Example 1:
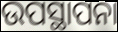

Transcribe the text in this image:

ଉପସ୍ଥାପନା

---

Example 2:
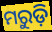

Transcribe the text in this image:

ମରୁଡ଼ି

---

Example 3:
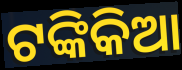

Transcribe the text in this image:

ଟଙ୍କିକିଆ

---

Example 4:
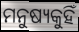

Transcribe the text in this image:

ମନୁଷ୍ୟକୁହିଁ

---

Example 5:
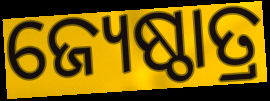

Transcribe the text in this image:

ଜ୍ୟେଷ୍ଠାତ୍ର